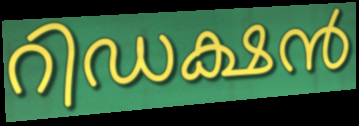
റിഡക്ഷൻ